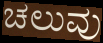
ಚಲುವು